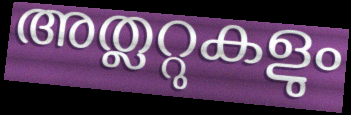
അത്ലറ്റുകളും